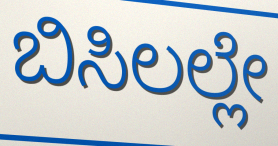
ಬಿಸಿಲಲ್ಲೇ